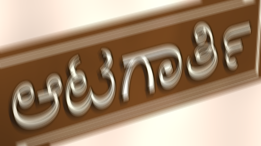
ಆಟಗಾರ್ತಿ